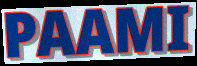
PAAMI